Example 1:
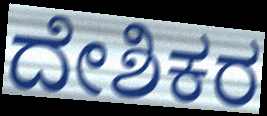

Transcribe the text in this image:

ದೇಶಿಕರ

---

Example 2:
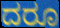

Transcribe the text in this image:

ದರೂ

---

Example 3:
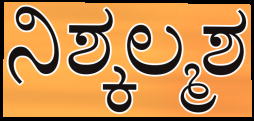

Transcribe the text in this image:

ನಿಶ್ಕಲ್ಮಶ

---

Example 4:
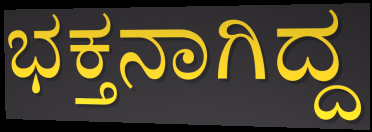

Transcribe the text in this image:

ಭಕ್ತನಾಗಿದ್ದ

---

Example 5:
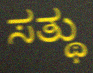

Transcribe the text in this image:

ಸತ್ಥು